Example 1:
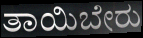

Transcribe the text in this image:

ತಾಯಿಬೇರು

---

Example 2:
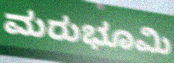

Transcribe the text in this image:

ಮರುಭೂಮಿ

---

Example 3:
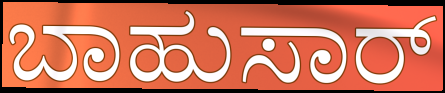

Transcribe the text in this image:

ಬಾಹುಸಾರ್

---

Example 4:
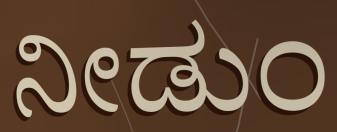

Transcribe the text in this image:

ನೀಡುಂ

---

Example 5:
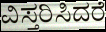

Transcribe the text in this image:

ವಿಸ್ತರಿಸಿದರೆ